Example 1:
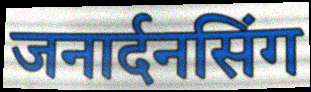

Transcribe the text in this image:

जनार्दनसिंग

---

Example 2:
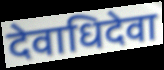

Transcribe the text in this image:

देवाधिदेवा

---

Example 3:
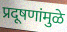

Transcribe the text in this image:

प्रदूषणांमुळे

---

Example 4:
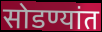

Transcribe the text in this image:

सोडण्यांत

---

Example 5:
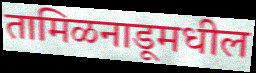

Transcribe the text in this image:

तामिळनाडूमधील